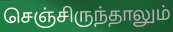
செஞ்சிருந்தாலும்